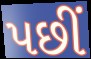
પછીં